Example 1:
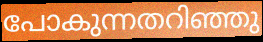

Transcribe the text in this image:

പോകുന്നതറിഞ്ഞു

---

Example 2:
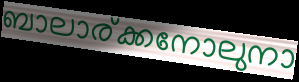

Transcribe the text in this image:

ബാലാര്ക്കനോലുനാ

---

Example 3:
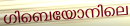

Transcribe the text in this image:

ഗിബെയോനിലെ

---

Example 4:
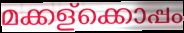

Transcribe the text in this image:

മക്കള്ക്കൊപ്പം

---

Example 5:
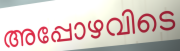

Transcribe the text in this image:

അപ്പോഴവിടെ